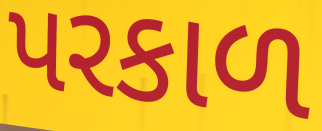
પરકાળ